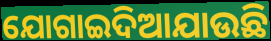
ଯୋଗାଇଦିଆଯାଉଛି